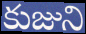
కుజుని